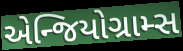
એન્જિયોગ્રામ્સ